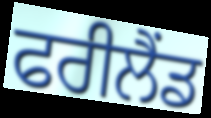
ਫਰੀਲੈਂਡ